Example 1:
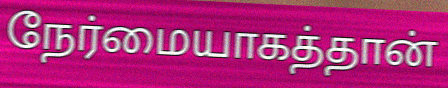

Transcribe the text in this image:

நேர்மையாகத்தான்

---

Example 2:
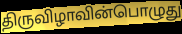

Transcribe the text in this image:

திருவிழாவின்பொழுது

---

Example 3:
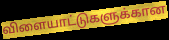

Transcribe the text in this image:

விளையாட்டுகளுக்கான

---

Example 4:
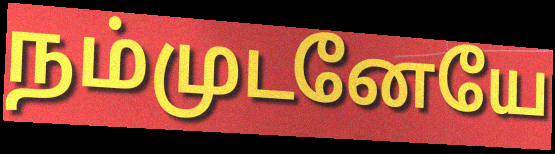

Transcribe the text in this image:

நம்முடனேயே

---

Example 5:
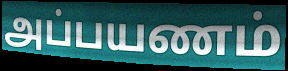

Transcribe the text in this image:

அப்பயணம்